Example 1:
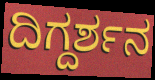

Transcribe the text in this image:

ದಿಗ್ದರ್ಶನ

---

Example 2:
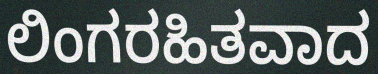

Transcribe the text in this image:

ಲಿಂಗರಹಿತವಾದ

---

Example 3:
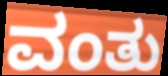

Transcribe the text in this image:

ವಂತು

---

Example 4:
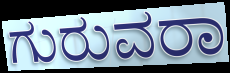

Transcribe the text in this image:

ಗುರುವರಾ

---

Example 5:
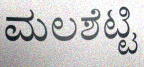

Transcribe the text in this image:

ಮಲಶೆಟ್ಟಿ